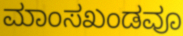
ಮಾಂಸಖಂಡವೂ